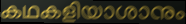
കഥകളിയാശാനും